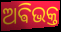
ଅଵିଭକ୍ତ